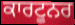
ਕਾਰਟੂਨਰ